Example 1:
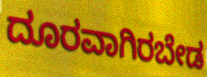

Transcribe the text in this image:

ದೂರವಾಗಿರಬೇಡ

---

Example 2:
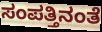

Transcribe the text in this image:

ಸಂಪತ್ತಿನಂತೆ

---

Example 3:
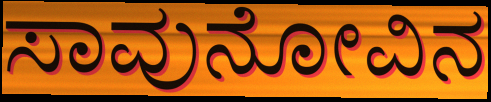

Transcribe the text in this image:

ಸಾವುನೋವಿನ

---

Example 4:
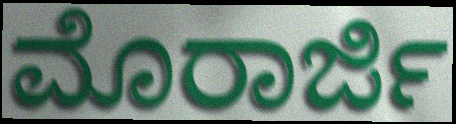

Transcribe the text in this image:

ಮೊರಾರ್ಜಿ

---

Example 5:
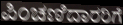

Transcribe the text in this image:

ಪಿಂಚಣಿದಾರರಿಗೆ